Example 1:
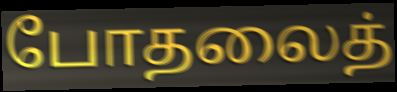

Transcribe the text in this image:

போதலைத்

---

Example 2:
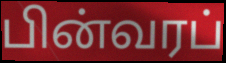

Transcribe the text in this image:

பின்வரப்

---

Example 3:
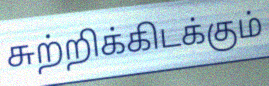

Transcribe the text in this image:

சுற்றிக்கிடக்கும்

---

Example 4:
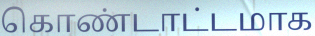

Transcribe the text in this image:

கொண்டாட்டமாக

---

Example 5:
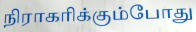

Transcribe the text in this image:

நிராகரிக்கும்போது